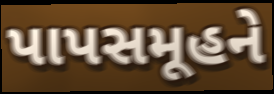
પાપસમૂહને